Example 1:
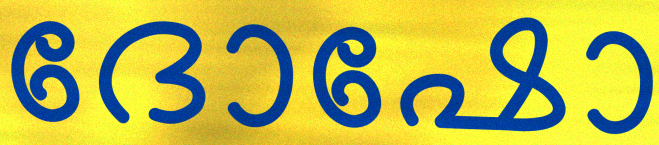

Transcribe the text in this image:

ദോഷോ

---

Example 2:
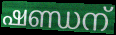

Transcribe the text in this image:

ഷണ്ഡന്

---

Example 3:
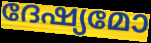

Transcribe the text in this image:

ദേഷ്യമോ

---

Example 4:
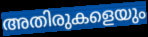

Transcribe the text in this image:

അതിരുകളെയും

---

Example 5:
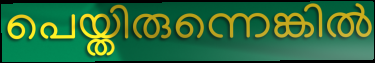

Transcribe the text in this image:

പെയ്തിരുന്നെങ്കിൽ